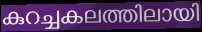
കുറച്ചകലത്തിലായി